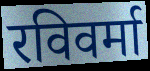
रविवर्मा